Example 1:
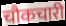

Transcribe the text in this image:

चौकचारी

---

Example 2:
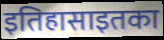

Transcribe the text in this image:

इतिहासाइतका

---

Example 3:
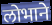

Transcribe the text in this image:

लोभाने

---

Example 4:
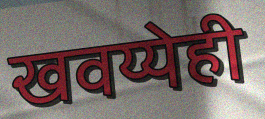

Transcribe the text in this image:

खवय्येही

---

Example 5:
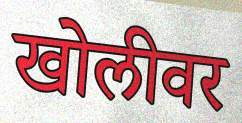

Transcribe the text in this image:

खोलीवर